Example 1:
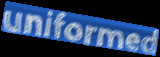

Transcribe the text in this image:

uniformed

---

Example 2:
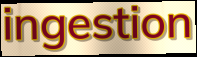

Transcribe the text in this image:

ingestion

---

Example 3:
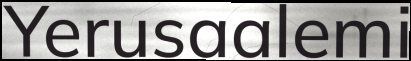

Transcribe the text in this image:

Yerusaalemi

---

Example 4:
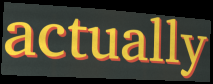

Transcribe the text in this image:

actually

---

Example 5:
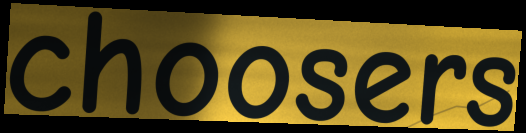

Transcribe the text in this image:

choosers